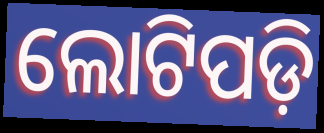
ଲୋଟିପଡ଼ି